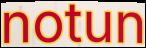
notun